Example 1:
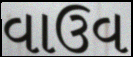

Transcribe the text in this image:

વાઉવ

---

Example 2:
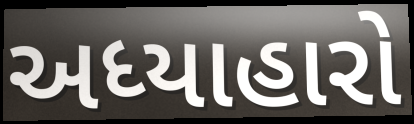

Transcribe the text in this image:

અધ્યાહારો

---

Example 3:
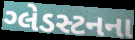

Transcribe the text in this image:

ગ્લેડસ્ટનના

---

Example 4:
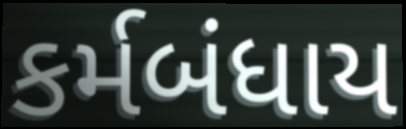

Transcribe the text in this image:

કર્મબંધાય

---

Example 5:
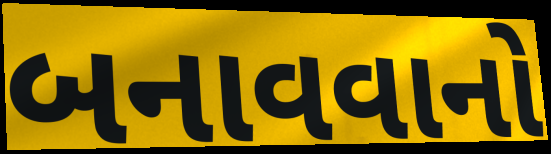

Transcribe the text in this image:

બનાવવાનો